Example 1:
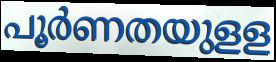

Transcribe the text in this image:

പൂർണതയുളള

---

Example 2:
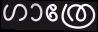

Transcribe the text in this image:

ഗാത്രേ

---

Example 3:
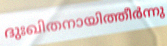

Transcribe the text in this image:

ദുഃഖിതനായിത്തീർന്നു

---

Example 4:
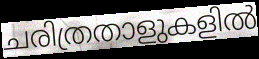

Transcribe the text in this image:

ചരിത്രതാളുകളിൽ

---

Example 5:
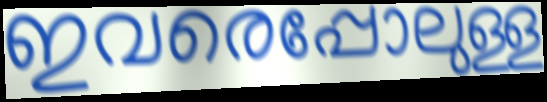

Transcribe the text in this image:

ഇവരെപ്പോലുള്ള